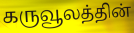
கருவூலத்தின்